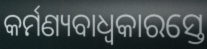
କର୍ମଣ୍ୟବାଧ୍ୱକାରସ୍ତେ